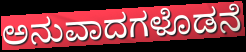
ಅನುವಾದಗಳೊಡನೆ